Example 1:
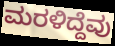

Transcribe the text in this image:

ಮರಳಿದ್ದೆವು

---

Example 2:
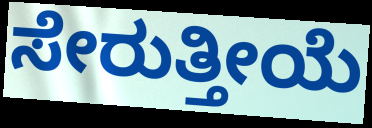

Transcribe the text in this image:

ಸೇರುತ್ತೀಯೆ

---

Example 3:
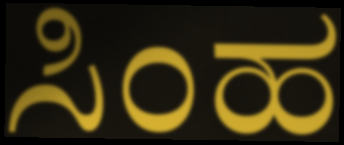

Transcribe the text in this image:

ಸಿಂಹ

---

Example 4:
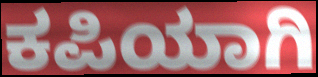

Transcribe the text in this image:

ಕಪಿಯಾಗಿ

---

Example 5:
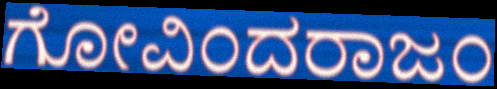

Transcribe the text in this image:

ಗೋವಿಂದರಾಜಂ